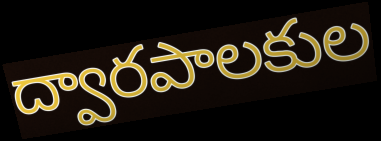
ద్వారపాలకుల